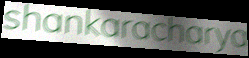
shankaracharya